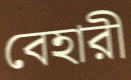
বেহারী